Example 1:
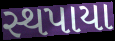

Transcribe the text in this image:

સ્થપાયા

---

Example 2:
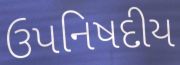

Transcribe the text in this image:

ઉપનિષદીય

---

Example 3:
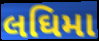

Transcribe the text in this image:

લઘિમા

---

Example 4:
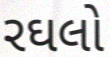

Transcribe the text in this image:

રઘલો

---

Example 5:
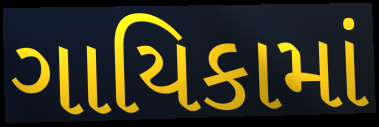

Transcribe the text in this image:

ગાયિકામાં